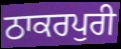
ਠਾਕਰਪੁਰੀ